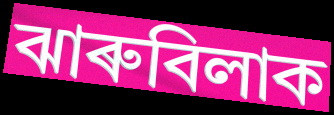
ঝাৰুবিলাক